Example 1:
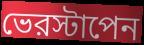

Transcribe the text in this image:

ভেরস্টাপেন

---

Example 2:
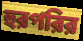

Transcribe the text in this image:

হুরপরির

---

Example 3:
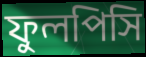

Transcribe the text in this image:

ফুলপিসি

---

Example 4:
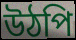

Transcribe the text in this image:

উঠপি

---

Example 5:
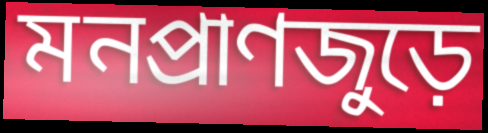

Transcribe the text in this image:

মনপ্রাণজুড়ে